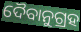
ଦୈବାନୁଗ୍ରହ